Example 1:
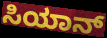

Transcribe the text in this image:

ಸಿಯಾನ್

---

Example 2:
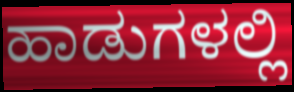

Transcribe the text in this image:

ಹಾಡುಗಳಲ್ಲಿ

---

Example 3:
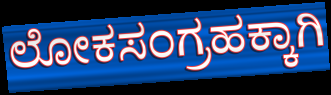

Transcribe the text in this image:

ಲೋಕಸಂಗ್ರಹಕ್ಕಾಗಿ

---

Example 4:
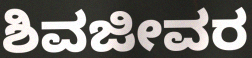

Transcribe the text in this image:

ಶಿವಜೀವರ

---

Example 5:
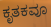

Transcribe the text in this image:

ಕೃತಕವೂ